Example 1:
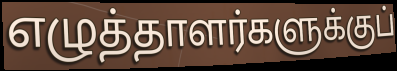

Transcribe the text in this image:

எழுத்தாளர்களுக்குப்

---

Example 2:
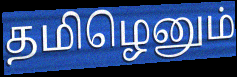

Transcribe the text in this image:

தமிழெனும்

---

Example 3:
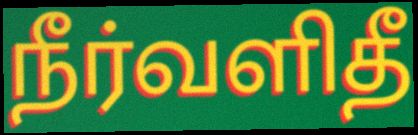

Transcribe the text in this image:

நீர்வளிதீ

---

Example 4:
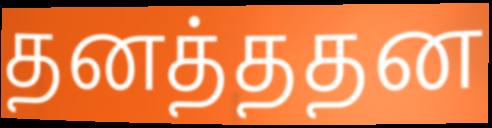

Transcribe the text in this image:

தனத்ததன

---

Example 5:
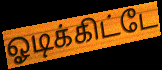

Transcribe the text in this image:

ஓடிக்கிட்டே